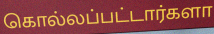
கொல்லப்பட்டார்களா